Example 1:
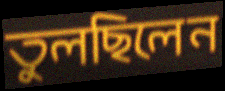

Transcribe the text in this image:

তুলছিলেন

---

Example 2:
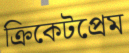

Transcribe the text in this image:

ক্রিকেটপ্রেম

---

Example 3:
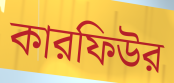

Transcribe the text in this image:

কারফিউর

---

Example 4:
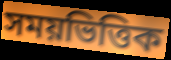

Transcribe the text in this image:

সময়ভিত্তিক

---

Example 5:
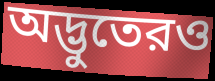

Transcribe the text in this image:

অদ্ভুতেরও